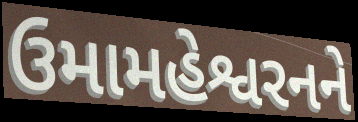
ઉમામહેશ્વરનને